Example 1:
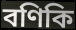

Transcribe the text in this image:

বণিকি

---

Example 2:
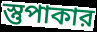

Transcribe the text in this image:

স্তুপাকার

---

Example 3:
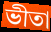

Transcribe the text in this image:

ভীতা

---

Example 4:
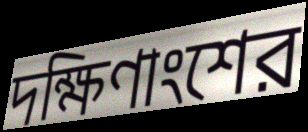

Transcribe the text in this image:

দক্ষিণাংশের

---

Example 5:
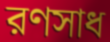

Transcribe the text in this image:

রণসাধ